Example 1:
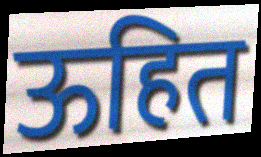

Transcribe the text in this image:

ऊहित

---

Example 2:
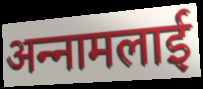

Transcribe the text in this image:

अन्‍नामलाई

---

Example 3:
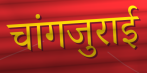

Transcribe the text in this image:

चांगजुराई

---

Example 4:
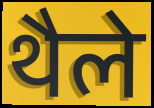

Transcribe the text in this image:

थैले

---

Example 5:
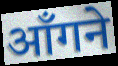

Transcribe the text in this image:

आँगने